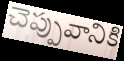
చెప్పువానికి